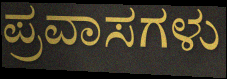
ಪ್ರವಾಸಗಳು